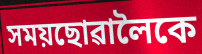
সময়ছোৱালৈকে